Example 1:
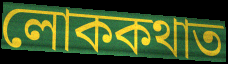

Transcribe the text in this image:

লোককথাত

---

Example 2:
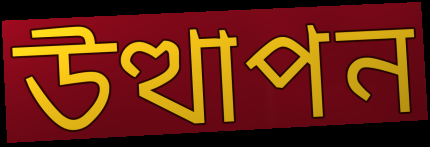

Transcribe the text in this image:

উত্থাপন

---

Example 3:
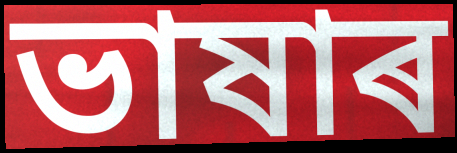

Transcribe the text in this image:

ভাষাৰ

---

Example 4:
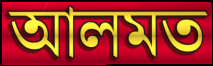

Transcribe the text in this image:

আলমত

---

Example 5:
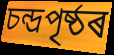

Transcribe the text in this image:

চন্দ্ৰপৃষ্ঠৰ